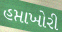
હપ્તાખોરી